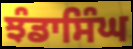
ਝੰਡਾਸਿੰਘ